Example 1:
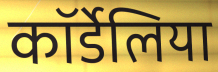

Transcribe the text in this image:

कॉर्डेलिया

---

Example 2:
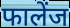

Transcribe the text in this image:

फालेंज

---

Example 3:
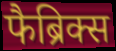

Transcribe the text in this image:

फैब्रिक्स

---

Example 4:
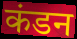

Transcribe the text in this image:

कंडन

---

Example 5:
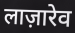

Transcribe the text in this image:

लाज़ारेव